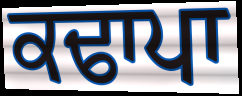
ਕਢਾਪਾ